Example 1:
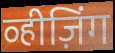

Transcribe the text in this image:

व्हीज़िंग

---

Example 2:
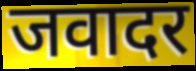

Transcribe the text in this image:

जवादर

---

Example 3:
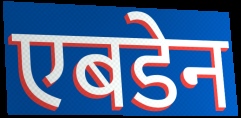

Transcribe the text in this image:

एबडेन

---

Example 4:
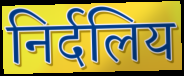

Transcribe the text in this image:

निर्दलिय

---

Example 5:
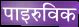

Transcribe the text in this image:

पाइरुविक